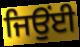
ਜਿਉਂਈ